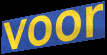
voor